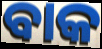
ବାକ